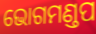
ଭୋଗମଣ୍ଡପ